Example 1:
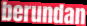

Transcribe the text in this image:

berundan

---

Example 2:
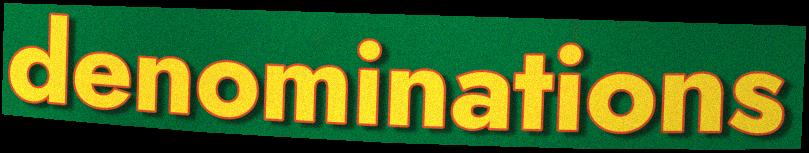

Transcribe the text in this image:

denominations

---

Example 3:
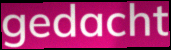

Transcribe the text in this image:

gedacht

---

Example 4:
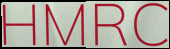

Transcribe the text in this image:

HMRC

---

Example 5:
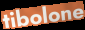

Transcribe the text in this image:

tibolone